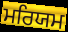
ਮਰਿਯਮ